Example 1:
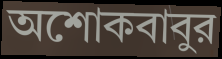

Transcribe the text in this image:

অশোকবাবুর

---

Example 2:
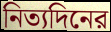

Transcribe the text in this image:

নিত্যদিনের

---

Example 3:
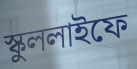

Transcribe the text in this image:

স্কুললাইফে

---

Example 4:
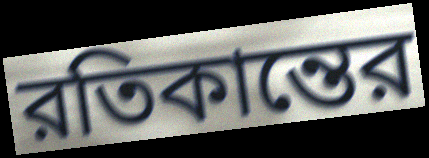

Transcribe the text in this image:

রতিকান্তের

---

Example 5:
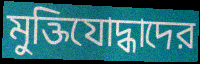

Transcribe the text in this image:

মুক্তিযোদ্ধাদের